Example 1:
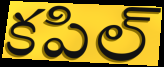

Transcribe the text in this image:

కపిల్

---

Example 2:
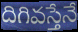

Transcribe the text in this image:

దిగివస్తేనే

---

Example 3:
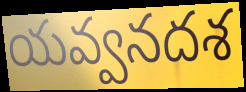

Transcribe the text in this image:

యవ్వనదశ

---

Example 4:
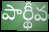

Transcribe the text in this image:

పార్థీవ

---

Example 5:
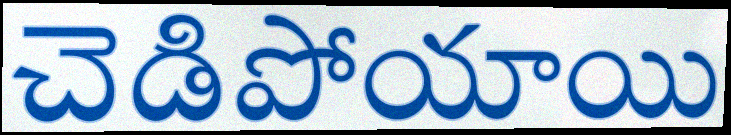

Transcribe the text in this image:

చెడిపోయాయి